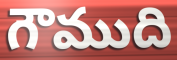
గౌముది